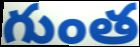
గుంత